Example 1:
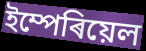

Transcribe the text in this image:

ইম্পেৰিয়েল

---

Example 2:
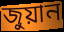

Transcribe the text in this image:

জুয়ান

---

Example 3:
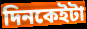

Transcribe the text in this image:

দিনকেইটা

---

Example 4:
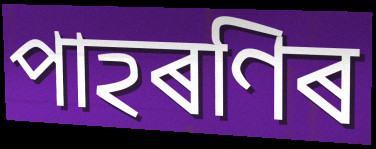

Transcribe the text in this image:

পাহৰণিৰ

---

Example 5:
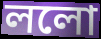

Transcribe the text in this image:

ললো